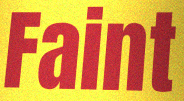
Faint